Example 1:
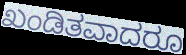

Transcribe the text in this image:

ಖಂಡಿತವಾದರೂ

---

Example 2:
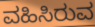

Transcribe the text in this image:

ವಹಿಸಿರುವ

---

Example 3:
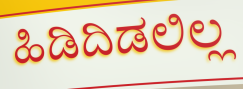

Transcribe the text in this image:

ಹಿಡಿದಿಡಲಿಲ್ಲ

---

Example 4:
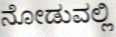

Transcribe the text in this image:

ನೋಡುವಲ್ಲಿ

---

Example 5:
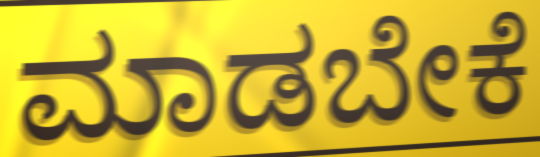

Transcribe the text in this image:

ಮಾಡಬೇಕೆ